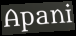
Apani